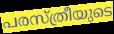
പരസ്ത്രീയുടെ